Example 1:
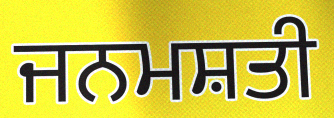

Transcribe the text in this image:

ਜਨਮਸ਼ਤੀ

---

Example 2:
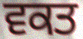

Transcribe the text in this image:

ਵਕਤ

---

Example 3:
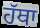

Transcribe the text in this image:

ਹੱਥਾ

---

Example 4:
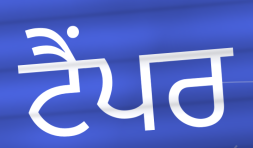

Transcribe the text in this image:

ਟੈਂਪਰ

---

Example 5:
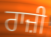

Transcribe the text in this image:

ਰਾਜ਼ੀ